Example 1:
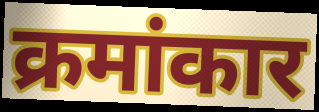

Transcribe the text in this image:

क्रमांकार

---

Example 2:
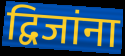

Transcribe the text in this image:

द्विजांना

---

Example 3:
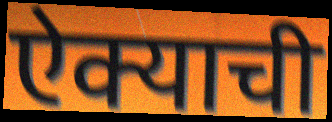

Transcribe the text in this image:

ऐक्याची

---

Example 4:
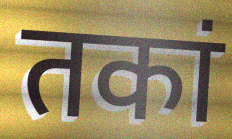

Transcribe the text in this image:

तकां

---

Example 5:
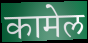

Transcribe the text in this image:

कामेल